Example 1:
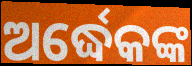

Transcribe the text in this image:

ଅର୍ଦ୍ଧେକଙ୍କ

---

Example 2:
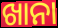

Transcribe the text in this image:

ଖାନା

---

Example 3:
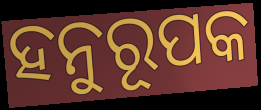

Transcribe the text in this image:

ହନୁରୂପକ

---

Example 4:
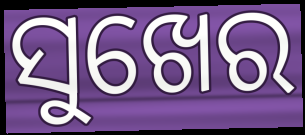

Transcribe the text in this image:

ସୁଖେର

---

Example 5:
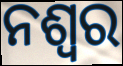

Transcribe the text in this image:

ନଶ୍ଵର